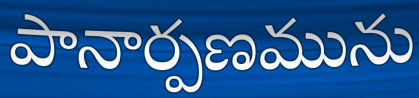
పానార్పణమును